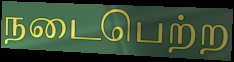
நடைபெற்ற